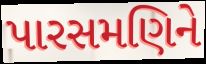
પારસમણિને